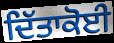
ਦਿੱਤਾਕੋਈ